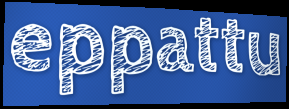
eppattu